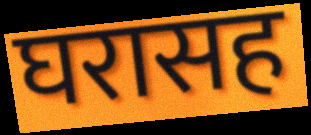
घरासह